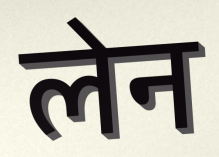
लेन